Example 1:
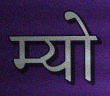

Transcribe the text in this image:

म्यो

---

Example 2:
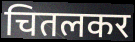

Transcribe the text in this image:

चितलकर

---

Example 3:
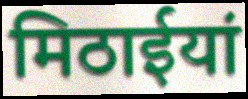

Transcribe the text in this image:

मिठाईयां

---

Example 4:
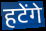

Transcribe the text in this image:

हटेंगे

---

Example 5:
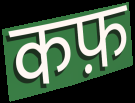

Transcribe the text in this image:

कफ़